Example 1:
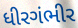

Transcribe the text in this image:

ધીરગંભીર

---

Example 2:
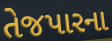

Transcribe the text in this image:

તેજપારના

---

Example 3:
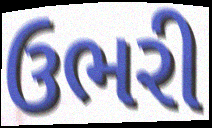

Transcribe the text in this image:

ઉભરી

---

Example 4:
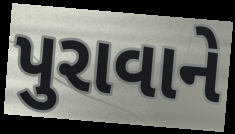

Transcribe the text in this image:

પુરાવાને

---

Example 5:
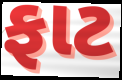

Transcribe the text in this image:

ફાટ